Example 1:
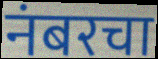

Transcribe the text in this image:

नंबरचा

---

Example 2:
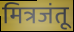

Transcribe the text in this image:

मित्रजंतू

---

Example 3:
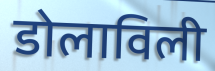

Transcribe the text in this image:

डोलाविली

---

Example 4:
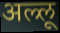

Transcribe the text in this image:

अल्लू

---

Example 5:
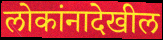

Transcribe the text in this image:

लोकांनादेखील